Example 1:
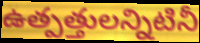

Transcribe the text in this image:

ఉత్పత్తులన్నిటినీ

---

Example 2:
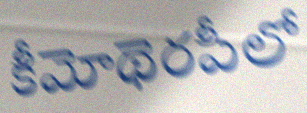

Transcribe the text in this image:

కీమోథెరపీలో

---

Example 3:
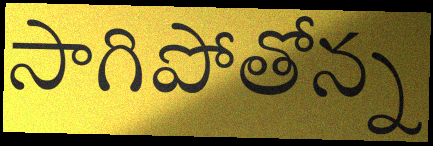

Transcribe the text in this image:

సాగిపోతోన్న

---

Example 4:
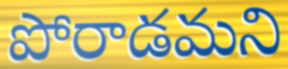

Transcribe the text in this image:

పోరాడమని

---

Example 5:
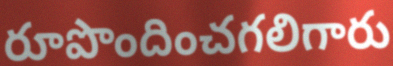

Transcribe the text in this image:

రూపొందించగలిగారు